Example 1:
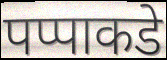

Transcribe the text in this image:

पप्पाकडे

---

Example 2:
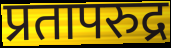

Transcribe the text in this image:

प्रतापरुद्र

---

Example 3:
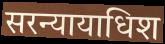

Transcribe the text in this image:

सरन्यायाधिश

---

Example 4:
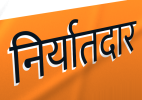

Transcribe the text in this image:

निर्यातदार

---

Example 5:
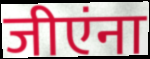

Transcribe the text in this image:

जीएंना